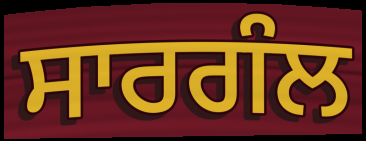
ਸਾਰਗੰਲ